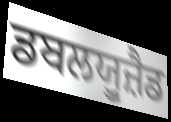
ਡਬਲਯੂਜ਼ੈਡ